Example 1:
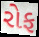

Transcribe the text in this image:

રોફ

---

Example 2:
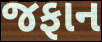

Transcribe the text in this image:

જફાન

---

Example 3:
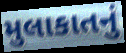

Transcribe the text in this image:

મુલાકાતનું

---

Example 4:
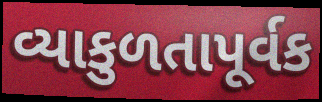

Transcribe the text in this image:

વ્યાકુળતાપૂર્વક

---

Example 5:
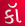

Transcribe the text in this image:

કૉ